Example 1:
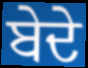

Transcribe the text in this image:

ਬੇਦੇ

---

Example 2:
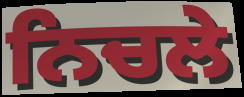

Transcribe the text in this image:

ਨਿਚਲੇ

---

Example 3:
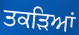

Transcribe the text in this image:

ਤਕੜਿਆਂ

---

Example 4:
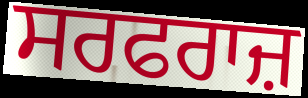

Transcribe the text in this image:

ਸਰਫਰਾਜ਼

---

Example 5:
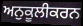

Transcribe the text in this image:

ਅਨੁਕੂਲੀਕਰਨ